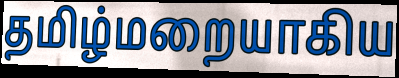
தமிழ்மறையாகிய